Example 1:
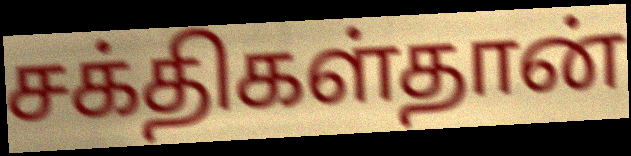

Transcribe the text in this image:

சக்திகள்தான்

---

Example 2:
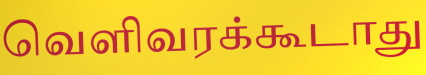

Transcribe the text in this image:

வெளிவரக்கூடாது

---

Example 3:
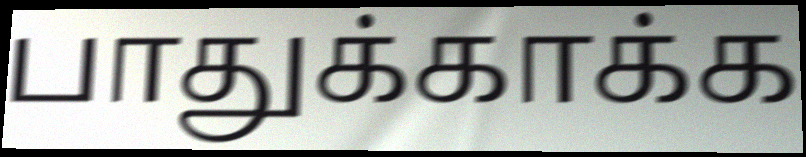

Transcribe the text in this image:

பாதுக்காக்க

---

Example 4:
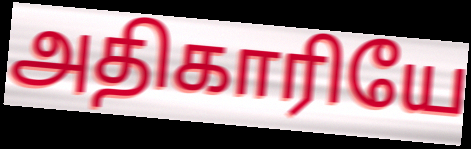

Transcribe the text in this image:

அதிகாரியே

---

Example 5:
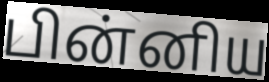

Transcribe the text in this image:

பின்னிய